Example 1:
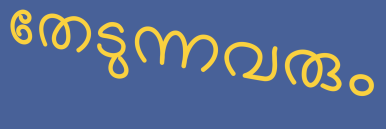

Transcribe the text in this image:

തേടുന്നവരും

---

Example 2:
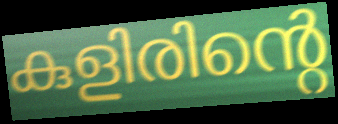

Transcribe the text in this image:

കുളിരിന്റെ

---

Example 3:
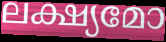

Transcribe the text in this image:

ലക്ഷ്യമോ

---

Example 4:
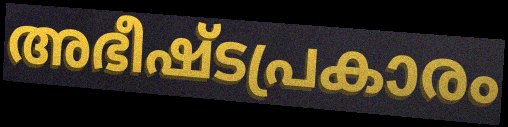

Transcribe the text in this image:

അഭീഷ്ടപ്രകാരം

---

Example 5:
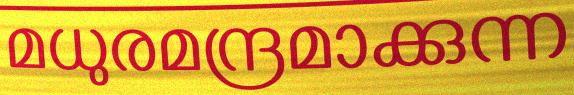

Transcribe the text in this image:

മധുരമന്ദ്രമാക്കുന്ന